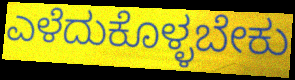
ಎಳೆದುಕೊಳ್ಳಬೇಕು